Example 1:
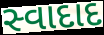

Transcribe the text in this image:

સ્વાદાદ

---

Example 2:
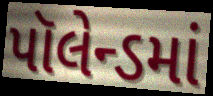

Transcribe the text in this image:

પૉલેન્ડમાં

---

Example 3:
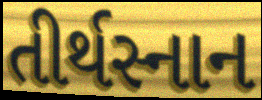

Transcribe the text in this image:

તીર્થસ્નાન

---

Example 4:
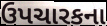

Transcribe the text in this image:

ઉપચારકના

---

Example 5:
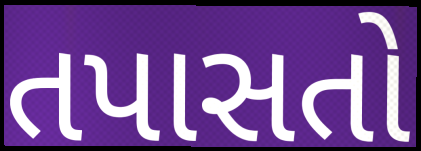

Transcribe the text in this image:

તપાસતો